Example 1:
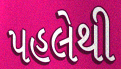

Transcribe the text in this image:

પહલેથી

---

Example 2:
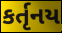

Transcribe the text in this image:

કર્તૃનય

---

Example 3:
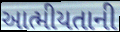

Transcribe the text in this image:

આત્મીયતાની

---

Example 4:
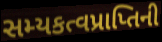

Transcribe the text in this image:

સમ્યકત્વપ્રાપ્તિની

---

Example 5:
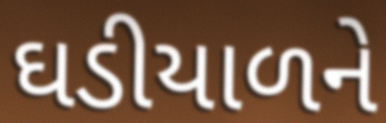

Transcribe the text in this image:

ઘડીયાળને